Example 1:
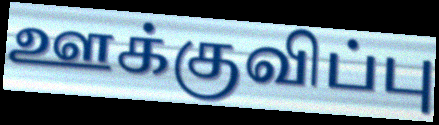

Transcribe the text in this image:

ஊக்குவிப்பு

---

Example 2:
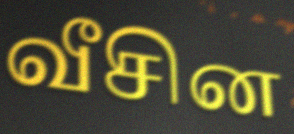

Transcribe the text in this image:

வீசின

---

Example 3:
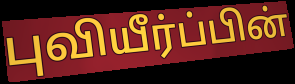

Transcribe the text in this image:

புவியீர்ப்பின்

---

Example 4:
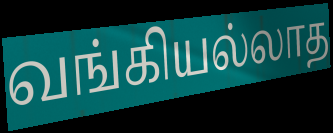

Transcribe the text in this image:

வங்கியல்லாத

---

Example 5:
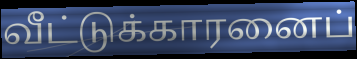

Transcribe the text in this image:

வீட்டுக்காரனைப்